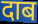
दाब